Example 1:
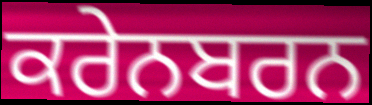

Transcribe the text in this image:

ਕਰੇਨਬਰਨ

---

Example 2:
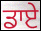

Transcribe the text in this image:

ਡਾਏ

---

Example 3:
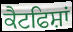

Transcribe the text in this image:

ਕੈਟਫਿਸ਼ਾਂ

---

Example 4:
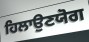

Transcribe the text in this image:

ਹਿਲਾਉਣਯੋਗ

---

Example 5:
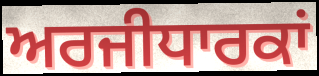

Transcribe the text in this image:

ਅਰਜੀਧਾਰਕਾਂ